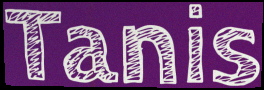
Tanis